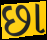
છા